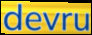
devru